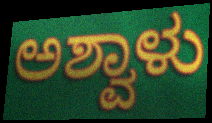
ಅಶ್ವಾಳು